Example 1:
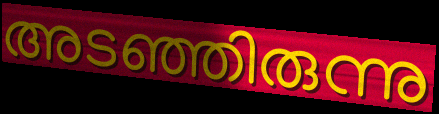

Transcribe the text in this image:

അടഞ്ഞിരുന്നു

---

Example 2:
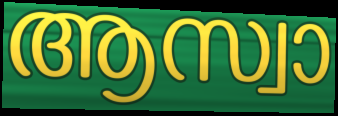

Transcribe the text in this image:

ആസ്വാ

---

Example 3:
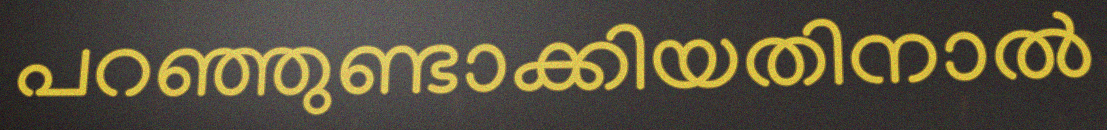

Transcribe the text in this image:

പറഞ്ഞുണ്ടാക്കിയതിനാൽ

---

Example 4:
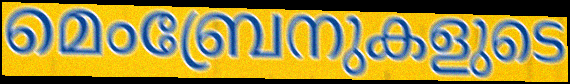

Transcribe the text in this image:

മെംബ്രേനുകളുടെ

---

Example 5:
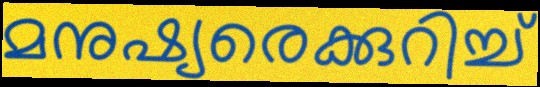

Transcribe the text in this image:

മനുഷ്യരെക്കുറിച്ച്